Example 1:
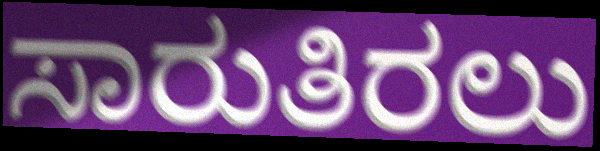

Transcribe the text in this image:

ಸಾರುತಿರಲು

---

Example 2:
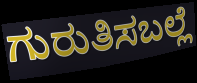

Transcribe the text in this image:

ಗುರುತಿಸಬಲ್ಲೆ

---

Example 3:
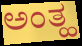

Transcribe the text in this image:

ಅಂತ್ಹ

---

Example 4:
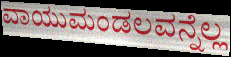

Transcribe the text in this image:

ವಾಯುಮಂಡಲವನ್ನೆಲ್ಲ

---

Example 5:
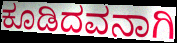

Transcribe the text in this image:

ಕೂಡಿದವನಾಗಿ